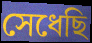
সেধেছি